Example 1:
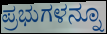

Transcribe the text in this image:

ಪ್ರಭುಗಳನ್ನೂ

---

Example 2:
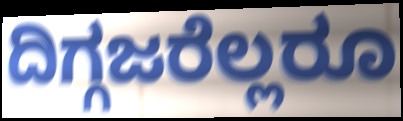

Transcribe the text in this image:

ದಿಗ್ಗಜರೆಲ್ಲರೂ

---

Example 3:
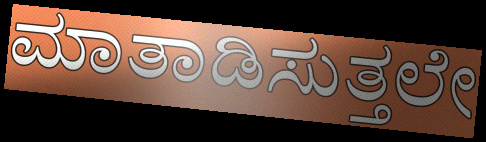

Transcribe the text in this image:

ಮಾತಾಡಿಸುತ್ತಲೇ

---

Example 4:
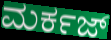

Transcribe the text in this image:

ಮರ್ಕಜ್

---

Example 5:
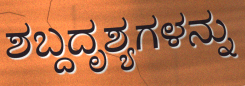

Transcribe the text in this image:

ಶಬ್ದದೃಶ್ಯಗಳನ್ನು